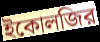
ইকোলজির